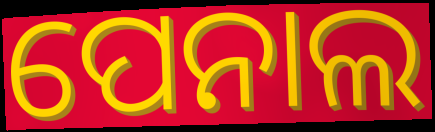
ପେନାଲ